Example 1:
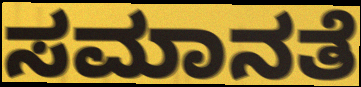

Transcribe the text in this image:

ಸಮಾನತೆ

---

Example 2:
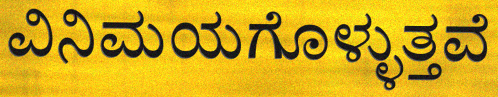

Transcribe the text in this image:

ವಿನಿಮಯಗೊಳ್ಳುತ್ತವೆ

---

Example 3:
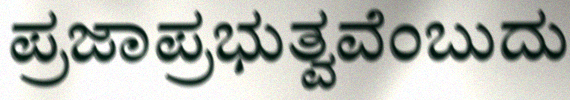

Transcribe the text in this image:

ಪ್ರಜಾಪ್ರಭುತ್ವವೆಂಬುದು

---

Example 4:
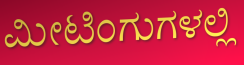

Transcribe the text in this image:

ಮೀಟಿಂಗುಗಳಲ್ಲಿ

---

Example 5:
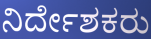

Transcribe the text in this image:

ನಿರ್ದೇಶಕರು